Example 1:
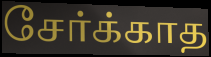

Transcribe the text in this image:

சேர்க்காத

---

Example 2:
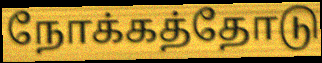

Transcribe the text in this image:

நோக்கத்தோடு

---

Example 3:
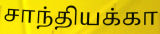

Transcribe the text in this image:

சாந்தியக்கா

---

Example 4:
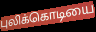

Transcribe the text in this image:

புலிக்கொடியை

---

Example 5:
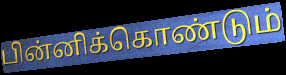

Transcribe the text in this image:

பின்னிக்கொண்டும்